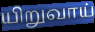
யிறுவாய்